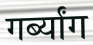
गर्ब्यांग